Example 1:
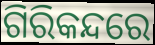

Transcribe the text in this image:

ଗିରିକନ୍ଦରେ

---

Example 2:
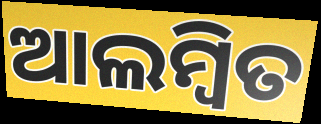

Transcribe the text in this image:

ଆଲମ୍ୱିତ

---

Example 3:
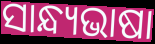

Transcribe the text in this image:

ସାନ୍ଧ୍ୟଭାଷା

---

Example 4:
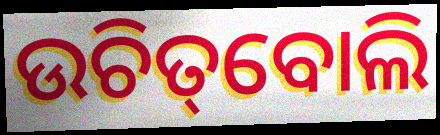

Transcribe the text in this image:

ଉଚିତ୍‌ବୋଲି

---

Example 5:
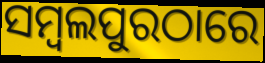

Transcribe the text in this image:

ସମ୍ବଲପୁରଠାରେ